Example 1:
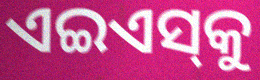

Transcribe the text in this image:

ଏଇଏସ୍‌କୁ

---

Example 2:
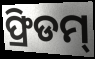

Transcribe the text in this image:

ଫ୍ରିଡମ୍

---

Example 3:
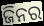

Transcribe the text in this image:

ଜିନର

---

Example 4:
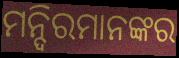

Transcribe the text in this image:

ମନ୍ଦିରମାନଙ୍କର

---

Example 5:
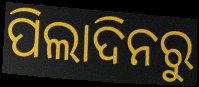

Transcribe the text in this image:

ପିଲାଦିନରୁ